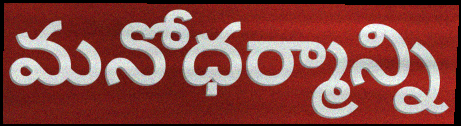
మనోధర్మాన్ని